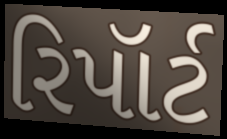
રિપૉર્ટ